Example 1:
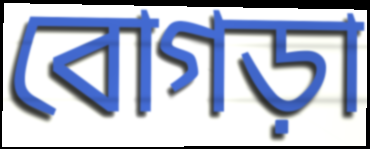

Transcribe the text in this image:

বোগড়া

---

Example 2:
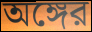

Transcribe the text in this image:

অঙ্গের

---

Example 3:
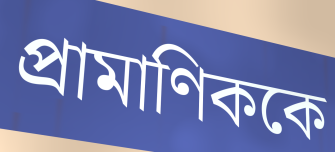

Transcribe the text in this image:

প্রামাণিককে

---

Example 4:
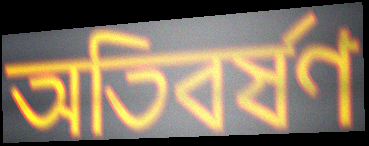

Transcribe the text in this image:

অতিবর্ষণ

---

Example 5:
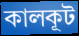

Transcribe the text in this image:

কালকূট